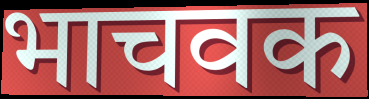
भाचवक